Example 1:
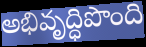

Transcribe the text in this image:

అభివృద్ధిపొంది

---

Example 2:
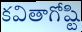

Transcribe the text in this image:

కవితాగోష్టి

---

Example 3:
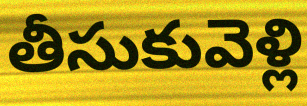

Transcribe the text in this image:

తీసుకువెళ్లి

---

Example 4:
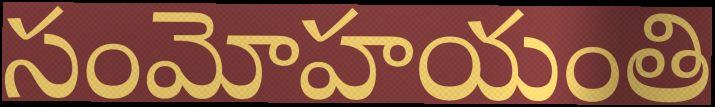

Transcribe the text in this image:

సంమోహయంతి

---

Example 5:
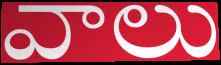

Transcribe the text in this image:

వాలు